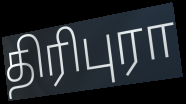
திரிபுரா